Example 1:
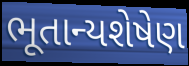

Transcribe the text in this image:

ભૂતાન્યશેષેણ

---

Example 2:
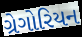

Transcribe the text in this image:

ગ્રેગોરિયન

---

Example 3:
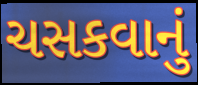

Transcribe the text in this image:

ચસકવાનું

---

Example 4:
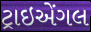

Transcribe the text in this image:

ટ્રાઇએંગલ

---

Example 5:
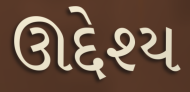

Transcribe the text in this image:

ઊદ્દેશ્ય